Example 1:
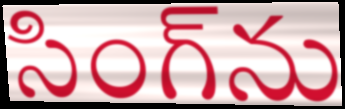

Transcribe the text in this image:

సింగ్‌ను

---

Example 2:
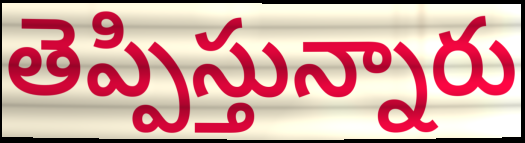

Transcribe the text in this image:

తెప్పిస్తున్నారు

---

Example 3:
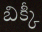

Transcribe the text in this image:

బిక్కీ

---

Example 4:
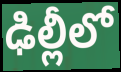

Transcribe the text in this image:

ఢిల్లీలో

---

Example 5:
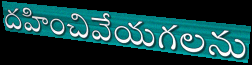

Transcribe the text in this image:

దహించివేయగలను